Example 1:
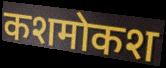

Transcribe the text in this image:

कशमोकश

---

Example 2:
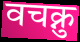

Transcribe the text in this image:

वचक्नु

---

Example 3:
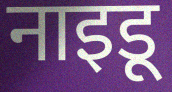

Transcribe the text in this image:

नाइडू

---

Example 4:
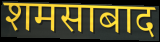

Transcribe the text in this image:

शमसाबाद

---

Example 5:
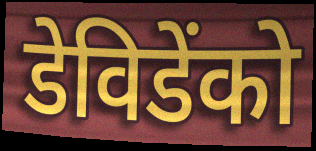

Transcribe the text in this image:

डेविडेंको